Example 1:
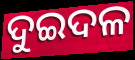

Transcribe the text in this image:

ଦୁଇଦଳ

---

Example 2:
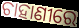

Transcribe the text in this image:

ଚାହାଣୀରେ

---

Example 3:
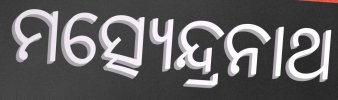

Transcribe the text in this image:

ମତ୍ସ୍ୟେନ୍ଦ୍ରନାଥ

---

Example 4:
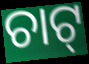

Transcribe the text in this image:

ଚାଟ୍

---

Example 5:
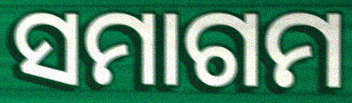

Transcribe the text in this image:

ସମାଗମ